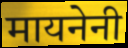
मायनेनी